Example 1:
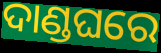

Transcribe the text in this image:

ଦାଣ୍ଡଘରେ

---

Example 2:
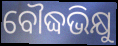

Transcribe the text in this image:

ବୌଦ୍ଧଭିକ୍ଷୁ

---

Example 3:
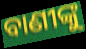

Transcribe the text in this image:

ବାଣୀଙ୍କୁ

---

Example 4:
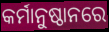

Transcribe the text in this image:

କର୍ମାନୁଷ୍ଠାନରେ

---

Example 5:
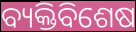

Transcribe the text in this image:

ବ୍ୟକ୍ତିବିଶେଷ